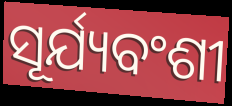
ସୂର୍ଯ୍ୟବଂଶୀ